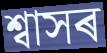
শ্বাসৰ